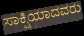
ಸಾಕ್ಷಿಯಾದವರು